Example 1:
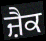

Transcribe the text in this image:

ਜ਼ੈਕ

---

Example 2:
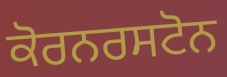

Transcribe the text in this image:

ਕੋਰਨਰਸਟੋਨ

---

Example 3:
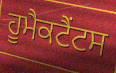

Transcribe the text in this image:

ਹੂਮੈਕਟੈਂਟਸ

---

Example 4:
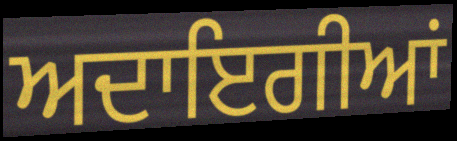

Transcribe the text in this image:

ਅਦਾਇਗੀਆਂ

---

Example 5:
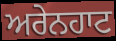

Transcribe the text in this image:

ਅਰੇਨਹਾਟ